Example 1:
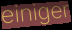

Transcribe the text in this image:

einiger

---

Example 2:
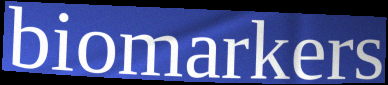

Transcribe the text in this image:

biomarkers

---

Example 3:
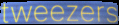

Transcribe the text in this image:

tweezers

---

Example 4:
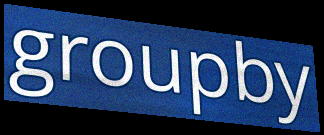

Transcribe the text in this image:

groupby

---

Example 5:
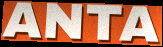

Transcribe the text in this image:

ANTA